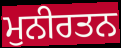
ਮੁਨੀਰਤਨ